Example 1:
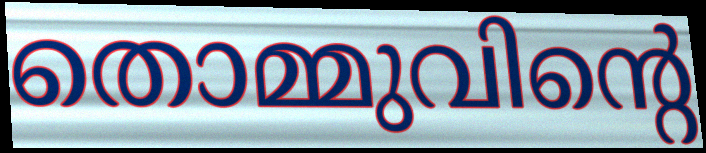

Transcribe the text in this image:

തൊമ്മുവിന്റെ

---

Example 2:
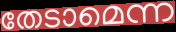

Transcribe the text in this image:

തേടാമെന്ന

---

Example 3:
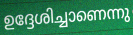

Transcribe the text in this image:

ഉദ്ദേശിച്ചാണെന്നു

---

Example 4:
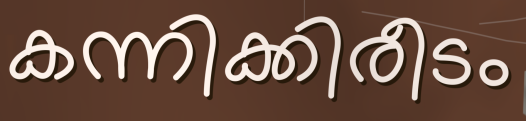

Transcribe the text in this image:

കന്നിക്കിരീടം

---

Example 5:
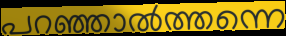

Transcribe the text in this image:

പറഞ്ഞാൽത്തന്നെ